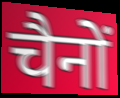
चैनों